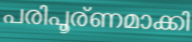
പരിപൂര്ണമാക്കി